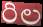
రిల